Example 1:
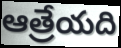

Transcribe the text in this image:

ఆత్రేయది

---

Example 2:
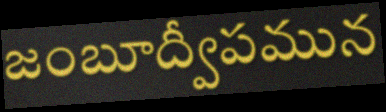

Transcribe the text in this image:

జంబూద్వీపమున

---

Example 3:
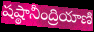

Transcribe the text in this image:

షష్ఠానీంద్రియాణి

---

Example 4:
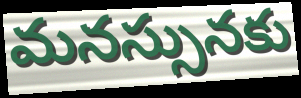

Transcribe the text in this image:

మనస్సునకు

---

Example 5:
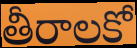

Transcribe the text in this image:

తీరాలకో